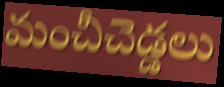
మంచీచెడ్డలు